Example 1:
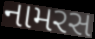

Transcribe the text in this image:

નામરસ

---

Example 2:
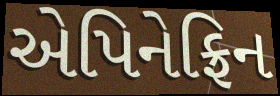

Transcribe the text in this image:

એપિનેફ્રિન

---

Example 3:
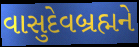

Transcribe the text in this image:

વાસુદેવબ્રહ્મને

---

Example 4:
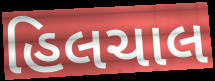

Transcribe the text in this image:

હિલચાલ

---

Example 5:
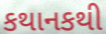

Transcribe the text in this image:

કથાનકથી